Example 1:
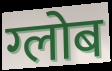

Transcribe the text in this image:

ग्‍लोब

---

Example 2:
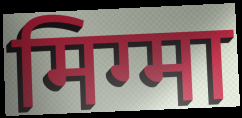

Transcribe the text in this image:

मिग्मा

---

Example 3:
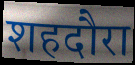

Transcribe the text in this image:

शहदौरा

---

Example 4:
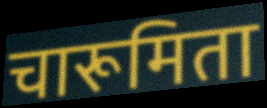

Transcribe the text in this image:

चारूमिता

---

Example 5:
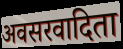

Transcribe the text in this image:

अवसरवादिता